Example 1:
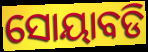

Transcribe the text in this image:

ସୋୟାବଡି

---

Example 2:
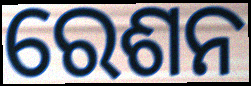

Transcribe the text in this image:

ରେଶନ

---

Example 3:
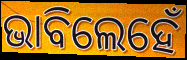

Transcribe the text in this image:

ଭାବିଲେହେଁ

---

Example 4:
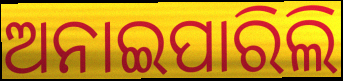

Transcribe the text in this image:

ଅନାଇପାରିଲି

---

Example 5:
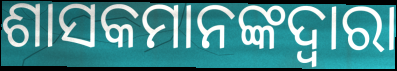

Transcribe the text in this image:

ଶାସକମାନଙ୍କଦ୍ୱାରା